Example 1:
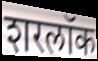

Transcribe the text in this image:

शरलॉक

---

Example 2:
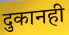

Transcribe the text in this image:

दुकानही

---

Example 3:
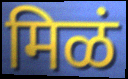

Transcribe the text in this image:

मिळं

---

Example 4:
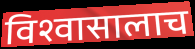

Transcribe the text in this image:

विश्वासालाच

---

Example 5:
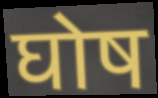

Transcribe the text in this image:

घोष